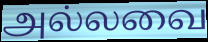
அல்லவை